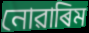
নোৱাৰিম